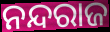
ନନ୍ଦରାଜ